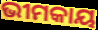
ଭୀମକାୟ